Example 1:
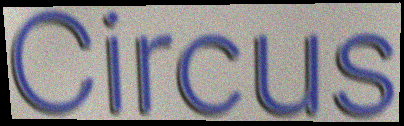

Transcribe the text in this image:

Circus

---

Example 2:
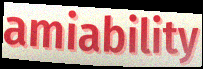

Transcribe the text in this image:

amiability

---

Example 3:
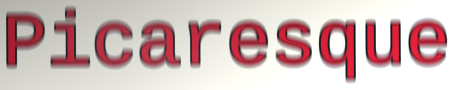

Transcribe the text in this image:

Picaresque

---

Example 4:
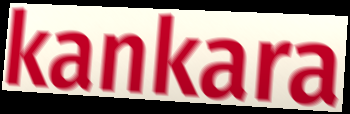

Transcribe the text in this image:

kankara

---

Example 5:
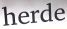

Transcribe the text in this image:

herde